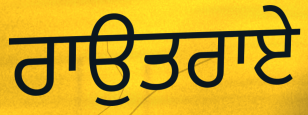
ਰਾਉਤਰਾਏ